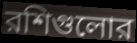
রশিগুলোর